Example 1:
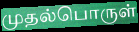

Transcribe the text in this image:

முதல்பொருள்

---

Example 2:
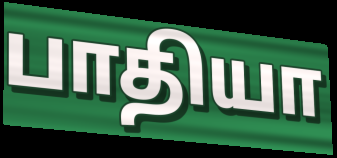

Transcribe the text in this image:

பாதியா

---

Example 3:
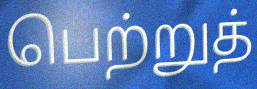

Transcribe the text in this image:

பெற்றுத்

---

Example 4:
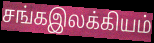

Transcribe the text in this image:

சங்கஇலக்கியம்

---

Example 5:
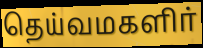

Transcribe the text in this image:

தெய்வமகளிர்